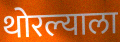
थोरल्याला